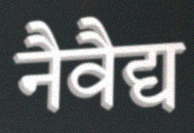
नैवैद्य